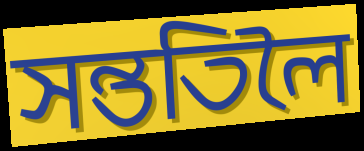
সন্ততিলৈ